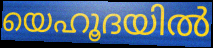
യെഹൂദയിൽ